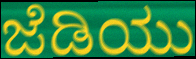
ಜೆಡಿಯು